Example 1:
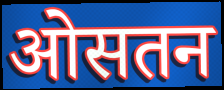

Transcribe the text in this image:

ओसतन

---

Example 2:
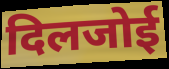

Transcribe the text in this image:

दिलजोई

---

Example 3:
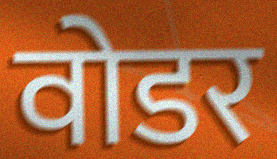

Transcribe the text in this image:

वोडर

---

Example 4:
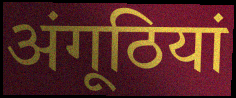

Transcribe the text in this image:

अंगूठियां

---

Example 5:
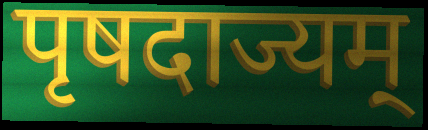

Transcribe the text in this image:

पृषदाज्यम्